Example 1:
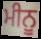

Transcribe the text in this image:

ਮੀਨੂ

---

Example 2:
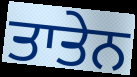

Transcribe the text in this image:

ਤਾਤੇਨ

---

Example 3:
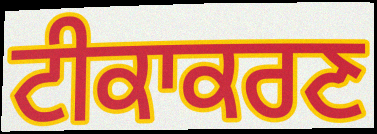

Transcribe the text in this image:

ਟੀਕਾਕਰਣ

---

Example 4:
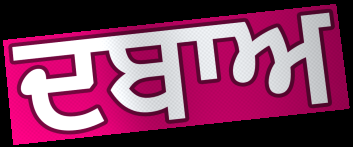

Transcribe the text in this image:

ਦਬਾਅ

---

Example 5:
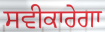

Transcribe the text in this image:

ਸਵੀਕਾਰੇਗਾ